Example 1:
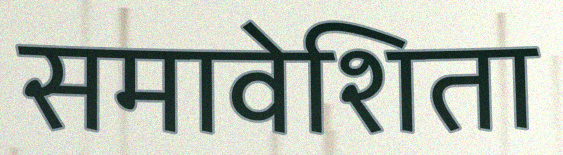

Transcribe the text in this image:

समावेशिता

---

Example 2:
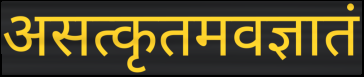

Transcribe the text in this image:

असत्कृतमवज्ञातं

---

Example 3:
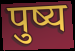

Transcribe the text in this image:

पुष्य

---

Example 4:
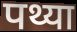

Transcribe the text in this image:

पथ्या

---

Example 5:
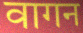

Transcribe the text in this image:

वागन